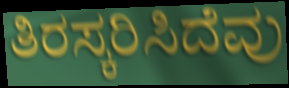
ತಿರಸ್ಕರಿಸಿದೆವು